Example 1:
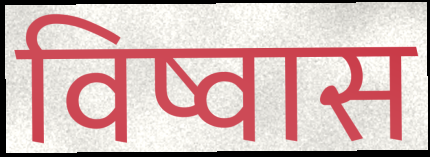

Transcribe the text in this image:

विष्वास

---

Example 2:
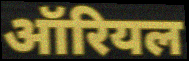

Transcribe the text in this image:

ऑरियल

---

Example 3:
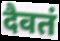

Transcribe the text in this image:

दैवतं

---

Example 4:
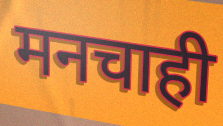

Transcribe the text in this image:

मनचाही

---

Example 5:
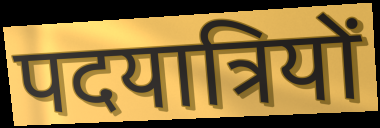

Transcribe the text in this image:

पदयात्रियों